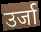
उर्जा